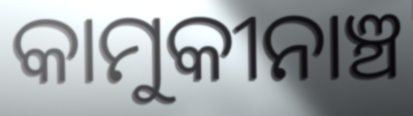
କାମୁକୀନାଞ୍ଚ